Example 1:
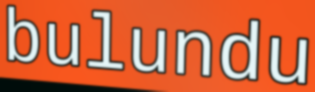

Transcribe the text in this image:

bulundu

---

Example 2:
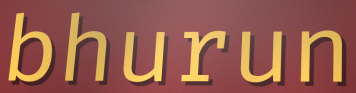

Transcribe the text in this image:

bhurun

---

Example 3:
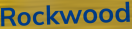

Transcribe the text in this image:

Rockwood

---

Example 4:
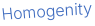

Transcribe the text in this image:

Homogenity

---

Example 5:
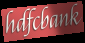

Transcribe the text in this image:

hdfcbank